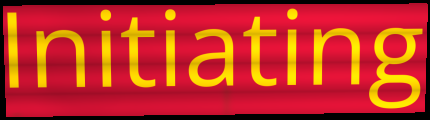
Initiating